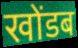
खोंडब